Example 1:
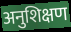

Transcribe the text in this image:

अनुशिक्षण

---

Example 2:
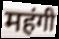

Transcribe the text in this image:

महंगी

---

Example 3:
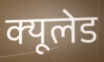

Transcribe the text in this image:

क्यूलेड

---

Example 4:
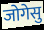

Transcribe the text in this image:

जोगेसु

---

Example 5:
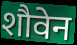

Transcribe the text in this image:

शौवेन